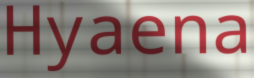
Hyaena